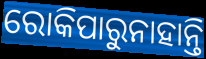
ରୋକିପାରୁନାହାନ୍ତି